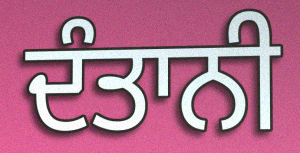
ਦੰਤਾਨੀ